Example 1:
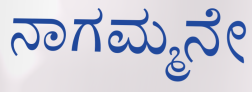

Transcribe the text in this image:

ನಾಗಮ್ಮನೇ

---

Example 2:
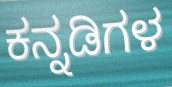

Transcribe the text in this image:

ಕನ್ನಡಿಗಳ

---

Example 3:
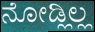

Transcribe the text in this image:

ನೋಡ್ಲಿಲ್ಲ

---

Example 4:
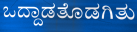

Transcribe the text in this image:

ಒದ್ದಾಡತೊಡಗಿತು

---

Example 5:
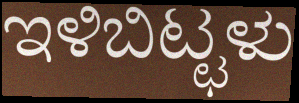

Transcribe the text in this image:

ಇಳಿಬಿಟ್ಟಳು